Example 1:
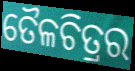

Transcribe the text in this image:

ତୈଳଚିତ୍ରର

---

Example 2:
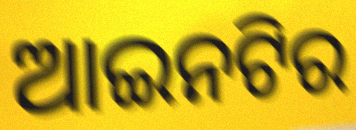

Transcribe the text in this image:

ଆଇନଟିର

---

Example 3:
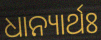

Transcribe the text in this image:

ଧାନ୍ୟାର୍ଥଃ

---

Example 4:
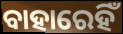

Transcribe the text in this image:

ବାହାରେହିଁ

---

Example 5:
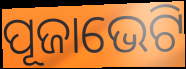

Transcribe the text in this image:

ପୂଜାଭେଟି